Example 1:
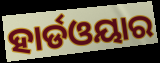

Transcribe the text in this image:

ହାର୍ଡଓୟାର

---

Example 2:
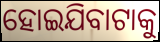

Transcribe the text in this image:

ହୋଇଯିବାଟାକୁ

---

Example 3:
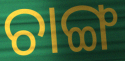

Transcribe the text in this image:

ଚାଙ୍ଗ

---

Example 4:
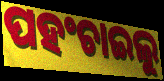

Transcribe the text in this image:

ପହଂଚାଇଲୁ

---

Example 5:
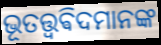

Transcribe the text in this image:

ଭୂତତ୍ତ୍ୱଵିଦମାନଙ୍କ